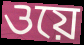
ওয়ে